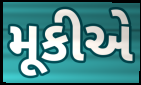
મૂકીએ